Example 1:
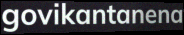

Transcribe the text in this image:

govikantanena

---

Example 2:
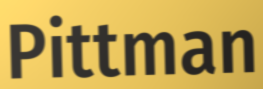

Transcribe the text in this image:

Pittman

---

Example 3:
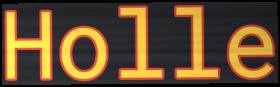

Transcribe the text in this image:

Holle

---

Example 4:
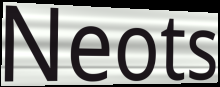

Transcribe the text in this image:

Neots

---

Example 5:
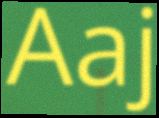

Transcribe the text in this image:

Aaj